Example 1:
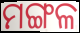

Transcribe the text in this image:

ମଙ୍ଗଳ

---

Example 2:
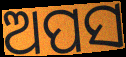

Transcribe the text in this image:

ଅପସ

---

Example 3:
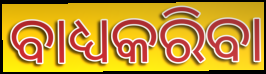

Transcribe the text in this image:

ବାଧ୍ୟକରିବା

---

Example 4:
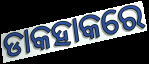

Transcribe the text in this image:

ଡାକହାକରେ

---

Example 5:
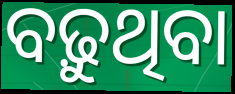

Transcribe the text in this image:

ବଢ଼ୁଥିବା